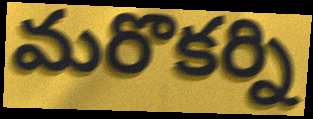
మరొకర్ని